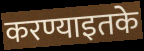
करण्याइतके